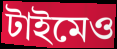
টাইমেও